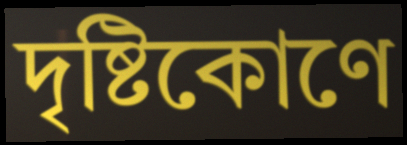
দৃষ্টিকোণে